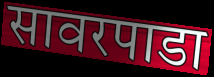
सावरपाडा